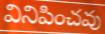
వినిపించవు